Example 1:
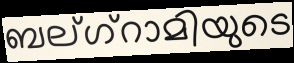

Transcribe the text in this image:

ബല്ഗ്റാമിയുടെ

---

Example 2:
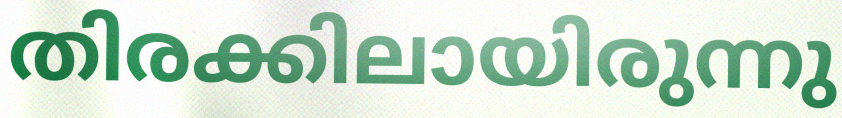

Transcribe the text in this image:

തിരക്കിലായിരുന്നു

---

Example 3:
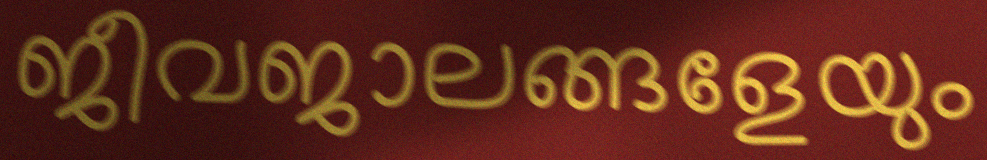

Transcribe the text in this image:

ജീവജാലങ്ങളേയും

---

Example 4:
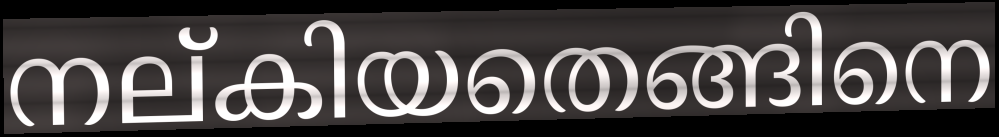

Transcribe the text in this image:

നല്കിയതെങ്ങിനെ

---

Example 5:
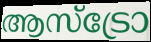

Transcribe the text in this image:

ആസ്ട്രോ